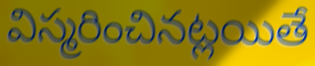
విస్మరించినట్లయితే